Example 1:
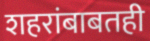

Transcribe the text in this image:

शहरांबाबतही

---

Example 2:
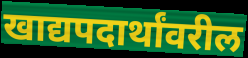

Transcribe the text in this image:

खाद्यपदार्थांवरील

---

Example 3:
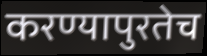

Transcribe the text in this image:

करण्यापुरतेच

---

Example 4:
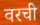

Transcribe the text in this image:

वरची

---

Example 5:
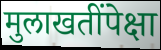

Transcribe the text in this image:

मुलाखतींपेक्षा